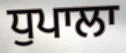
ਧੁਪਾਲਾ